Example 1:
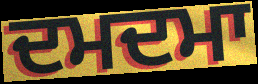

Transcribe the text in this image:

ਦਮਦਮਾ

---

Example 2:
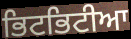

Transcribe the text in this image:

ਭਿਟਭਿਟੀਆ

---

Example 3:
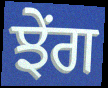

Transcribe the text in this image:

ਝੇਂਗ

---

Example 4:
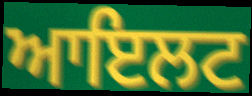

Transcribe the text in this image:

ਆਇਲਟ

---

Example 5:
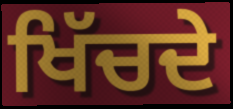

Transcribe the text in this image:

ਖਿੱਚਦੇ